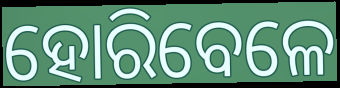
ହୋରିବେଳେ